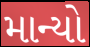
માન્યો